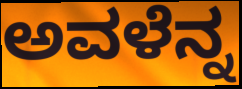
ಅವಳೆನ್ನ